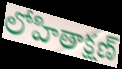
లోహితాక్షణ్